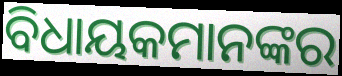
ବିଧାୟକମାନଙ୍କର